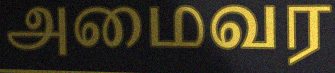
அமைவர